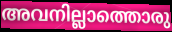
അവനില്ലാത്തൊരു